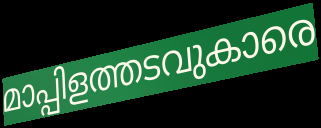
മാപ്പിളത്തടവുകാരെ